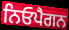
ਨਿਓਪੈਗਨ